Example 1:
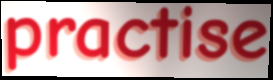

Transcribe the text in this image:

practise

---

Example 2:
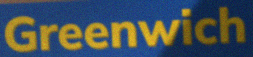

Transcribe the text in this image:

Greenwich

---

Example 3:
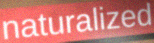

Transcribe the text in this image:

naturalized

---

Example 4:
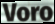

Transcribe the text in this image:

Voro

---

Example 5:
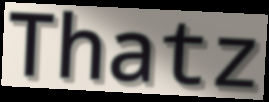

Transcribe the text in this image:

Thatz